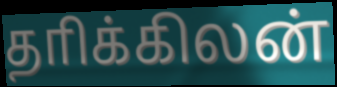
தரிக்கிலன்